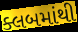
ક્લબમાંથી